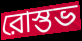
রোস্তভ